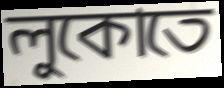
লুকোতে